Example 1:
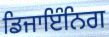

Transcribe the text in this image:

ਡਿਜਾਇੰਨਿਗ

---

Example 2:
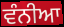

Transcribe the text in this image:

ਵੰਨੀਆ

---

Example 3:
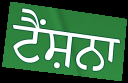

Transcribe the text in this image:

ਟੈਂਸ਼ਨਾ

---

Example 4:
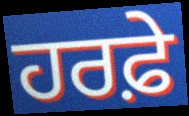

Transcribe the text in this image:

ਹਰਫ਼ੇ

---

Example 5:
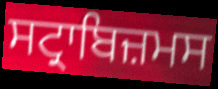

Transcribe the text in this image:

ਸਟ੍ਰਾਬਿਜ਼ਮਸ